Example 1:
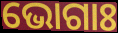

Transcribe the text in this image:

ଭୋଗାଃ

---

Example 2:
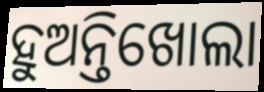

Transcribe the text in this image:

ହୁଅନ୍ତିଖୋଲା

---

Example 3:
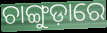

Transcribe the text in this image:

ଚାଙ୍ଗୁଡ଼ାରେ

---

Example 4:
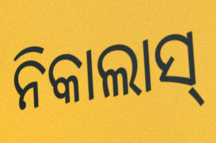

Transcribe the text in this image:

ନିକାଲାସ୍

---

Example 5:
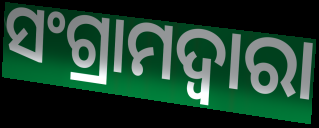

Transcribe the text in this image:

ସଂଗ୍ରାମଦ୍ଵାରା